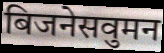
बिजनेसवुमन